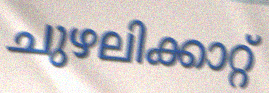
ചുഴലിക്കാറ്റ്